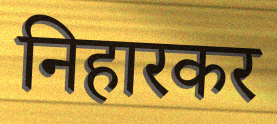
निहारकर